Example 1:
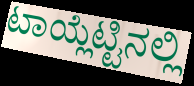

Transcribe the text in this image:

ಟಾಯ್ಲೆಟ್ಟಿನಲ್ಲಿ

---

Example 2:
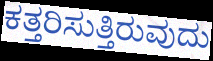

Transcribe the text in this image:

ಕತ್ತರಿಸುತ್ತಿರುವುದು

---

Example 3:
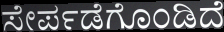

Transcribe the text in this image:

ಸೇರ್ಪಡೆಗೊಂಡಿದೆ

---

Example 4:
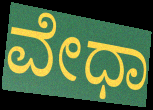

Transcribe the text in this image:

ವೇಧಾ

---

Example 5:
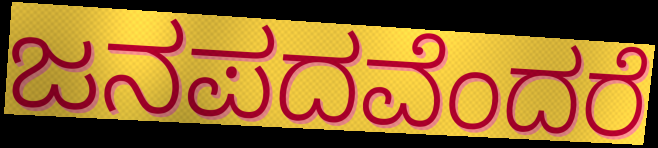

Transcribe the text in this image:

ಜನಪದವೆಂದರೆ